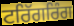
ਟਰਿੱਗਰਿੰਗ